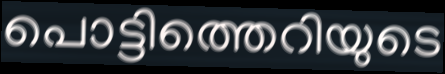
പൊട്ടിത്തെറിയുടെ